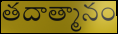
తదాత్మానం